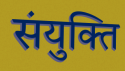
संयुक्ति